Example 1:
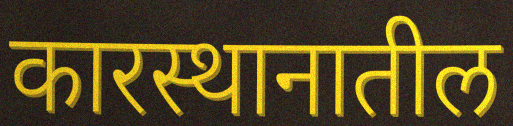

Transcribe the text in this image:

कारस्थानातील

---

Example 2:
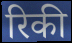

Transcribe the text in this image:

रिकी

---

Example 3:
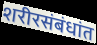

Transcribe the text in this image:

शरीरसंबंधांत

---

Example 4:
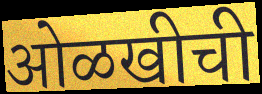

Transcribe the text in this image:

ओळखीची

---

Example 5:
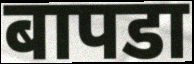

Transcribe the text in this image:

बापडा